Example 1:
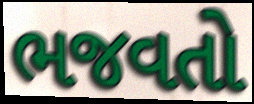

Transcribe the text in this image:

ભજવતો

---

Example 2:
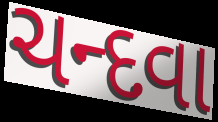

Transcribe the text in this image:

ચન્દવા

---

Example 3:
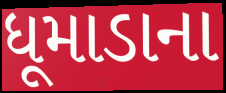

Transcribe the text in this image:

ધૂમાડાના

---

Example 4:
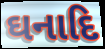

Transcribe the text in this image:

ઘનાદિ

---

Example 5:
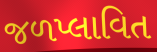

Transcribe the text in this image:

જળપ્લાવિત